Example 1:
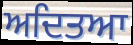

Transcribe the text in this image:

ਅਦਿਤਆ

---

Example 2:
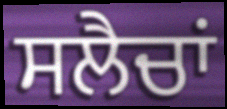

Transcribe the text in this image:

ਸਲੈਚਾਂ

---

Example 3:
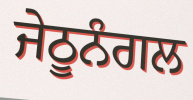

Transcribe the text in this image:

ਜੇਠੂਨੰਗਲ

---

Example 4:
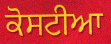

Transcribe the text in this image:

ਕੋਸਟੀਆ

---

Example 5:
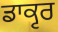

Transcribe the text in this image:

ਡਾਕ੍ਟਰ